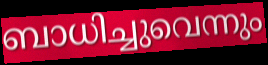
ബാധിച്ചുവെന്നും